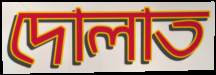
দোলাত